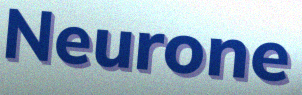
Neurone